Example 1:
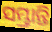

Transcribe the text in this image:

ସମ୍ଭ୍ରାନ୍ତି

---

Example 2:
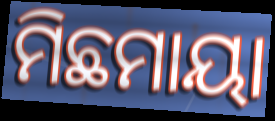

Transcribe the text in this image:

ମିଛମାୟା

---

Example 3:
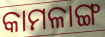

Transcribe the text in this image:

କାମଳାଙ୍ଗ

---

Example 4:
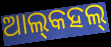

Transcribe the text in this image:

ଆଲ୍‌କହଲ୍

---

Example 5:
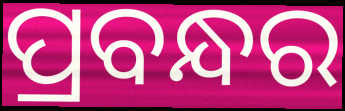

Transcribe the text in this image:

ପ୍ରବନ୍ଧର